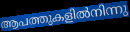
ആപത്തുകളിൽനിന്നു